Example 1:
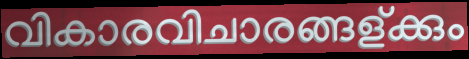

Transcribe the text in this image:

വികാരവിചാരങ്ങള്ക്കും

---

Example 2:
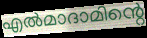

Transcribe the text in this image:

എൽമാദാമിന്റെ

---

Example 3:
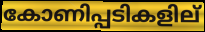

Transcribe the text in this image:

കോണിപ്പടികളില്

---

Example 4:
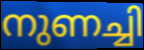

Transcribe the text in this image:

നുണച്ചി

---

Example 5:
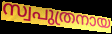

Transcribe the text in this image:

സ്വപുത്രനായ